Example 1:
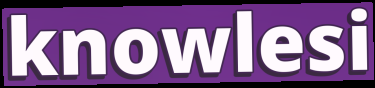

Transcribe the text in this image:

knowlesi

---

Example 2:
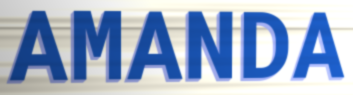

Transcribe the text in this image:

AMANDA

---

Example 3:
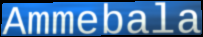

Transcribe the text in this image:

Ammebala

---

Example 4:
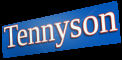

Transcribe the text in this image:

Tennyson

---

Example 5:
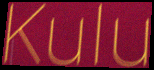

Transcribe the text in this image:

Kulu